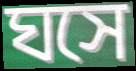
ঘসে